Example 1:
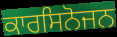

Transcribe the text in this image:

ਕਾਰਸਿਨੋਜਨ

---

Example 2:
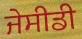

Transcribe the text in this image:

ਜੇਸੀਡੀ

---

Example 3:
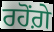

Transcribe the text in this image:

ਰਹੋਂਗ਼ੇ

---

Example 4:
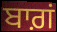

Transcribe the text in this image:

ਬਾਗ਼ਂ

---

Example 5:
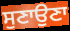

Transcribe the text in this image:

ਸੁਣਾਉਣਾ